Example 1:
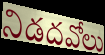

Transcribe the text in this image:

నిడదవోలు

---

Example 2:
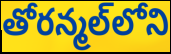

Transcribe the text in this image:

తోరన్మల్‌లోని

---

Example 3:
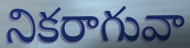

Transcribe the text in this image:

నికరాగువా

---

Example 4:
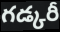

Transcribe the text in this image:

గడ్కరీ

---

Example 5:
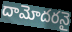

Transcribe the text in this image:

దామోదరనై